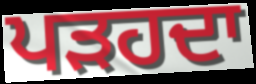
ਪੜਹਦਾ